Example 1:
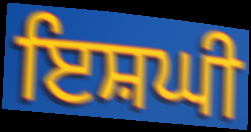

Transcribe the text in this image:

ਇਸ਼ਘੀ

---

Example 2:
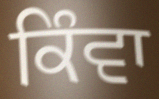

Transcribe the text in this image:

ਕਿੰਵਾ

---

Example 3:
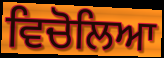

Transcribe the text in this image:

ਵਿਚੋਲਿਆ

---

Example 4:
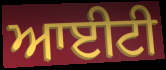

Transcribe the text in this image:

ਆਈਟੀ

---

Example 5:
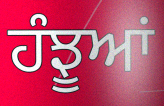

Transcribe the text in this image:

ਹੰਝੂਆਂ